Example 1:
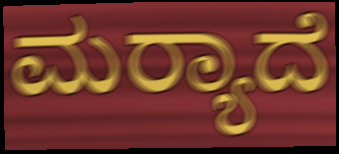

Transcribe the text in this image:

ಮರ‍್ಯಾದೆ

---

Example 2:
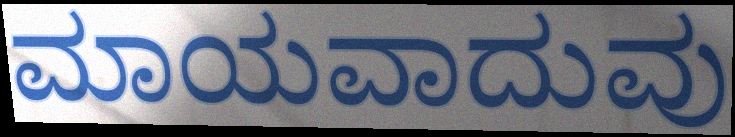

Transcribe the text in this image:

ಮಾಯವಾದುವು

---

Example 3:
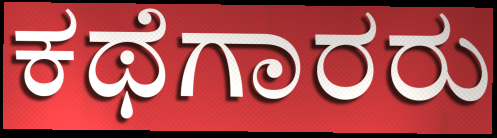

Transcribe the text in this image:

ಕಥೆಗಾರರು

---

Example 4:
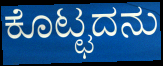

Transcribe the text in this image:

ಕೊಟ್ಟದನು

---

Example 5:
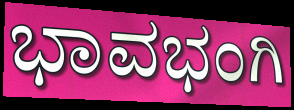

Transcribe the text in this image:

ಭಾವಭಂಗಿ